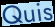
Quis